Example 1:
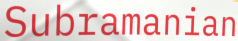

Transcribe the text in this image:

Subramanian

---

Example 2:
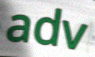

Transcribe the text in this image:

adv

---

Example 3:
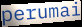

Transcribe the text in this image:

perumai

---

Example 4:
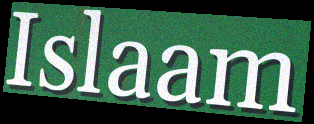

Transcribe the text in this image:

Islaam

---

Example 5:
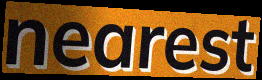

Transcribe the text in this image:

nearest